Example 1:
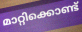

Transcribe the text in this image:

മാറ്റിക്കൊണ്ട്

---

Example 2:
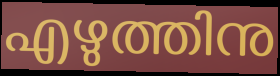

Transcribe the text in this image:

എഴുത്തിനു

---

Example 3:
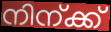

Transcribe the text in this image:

നിന്ക്ക്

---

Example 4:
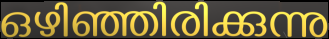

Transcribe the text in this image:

ഒഴിഞ്ഞിരിക്കുന്നു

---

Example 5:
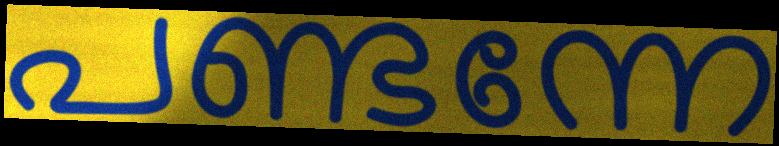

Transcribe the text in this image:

പണ്ടന്നേ